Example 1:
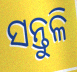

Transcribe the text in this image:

ସନ୍ତୁଳି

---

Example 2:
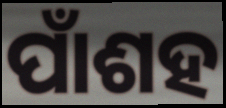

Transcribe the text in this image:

ପାଁଶହ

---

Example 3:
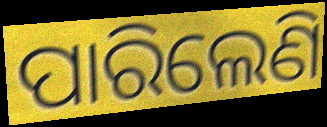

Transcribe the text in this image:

ପାରିଲେଣି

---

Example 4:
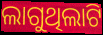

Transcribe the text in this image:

ଲାଗୁଥିଲାଟି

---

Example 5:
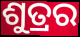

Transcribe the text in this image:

ଶୁତ୍ରର